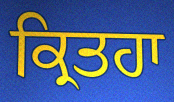
ਕ੍ਰਿਤਹਾ